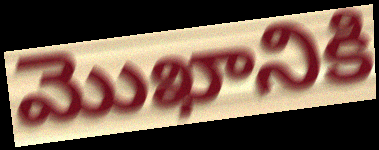
మొఖానికి